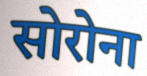
सोरोना